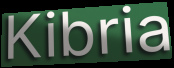
Kibria